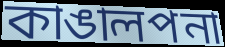
কাঙালপনা